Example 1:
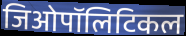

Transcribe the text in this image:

जिओपॉलिटिकल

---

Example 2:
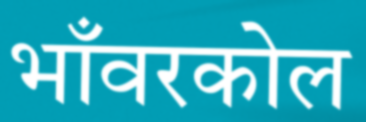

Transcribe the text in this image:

भाँवरकोल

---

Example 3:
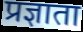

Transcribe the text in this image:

प्रज्ञाता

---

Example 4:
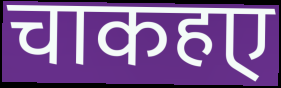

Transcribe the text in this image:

चाकहए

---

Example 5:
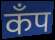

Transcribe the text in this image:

कॅंप